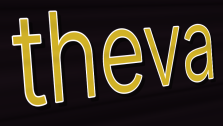
theva